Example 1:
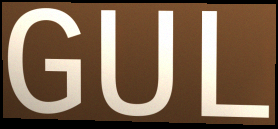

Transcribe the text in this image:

GUL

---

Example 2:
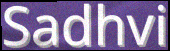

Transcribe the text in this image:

Sadhvi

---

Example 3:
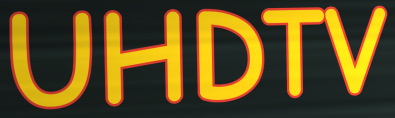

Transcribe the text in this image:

UHDTV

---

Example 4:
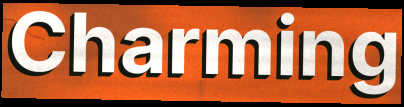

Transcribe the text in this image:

Charming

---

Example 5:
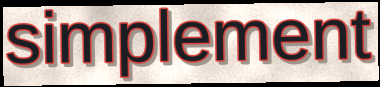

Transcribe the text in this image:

simplement